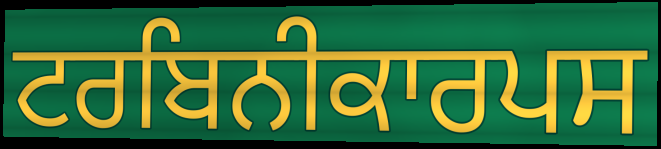
ਟਰਬਿਨੀਕਾਰਪਸ